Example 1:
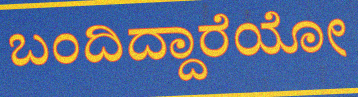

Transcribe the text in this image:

ಬಂದಿದ್ದಾರೆಯೋ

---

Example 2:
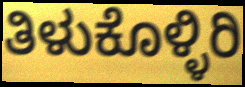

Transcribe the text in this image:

ತಿಳುಕೊಳ್ಳಿರಿ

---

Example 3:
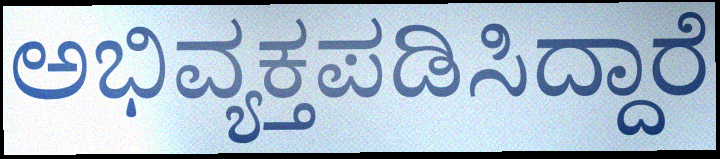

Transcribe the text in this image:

ಅಭಿವ್ಯಕ್ತಪಡಿಸಿದ್ದಾರೆ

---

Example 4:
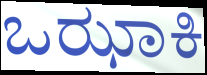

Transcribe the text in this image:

ಒಝಾಕಿ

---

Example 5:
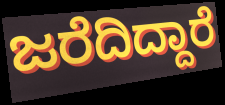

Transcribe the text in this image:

ಜರೆದಿದ್ದಾರೆ